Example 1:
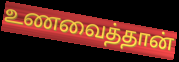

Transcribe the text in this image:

உணவைத்தான்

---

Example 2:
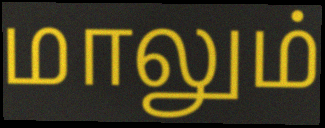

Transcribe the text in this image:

மாலும்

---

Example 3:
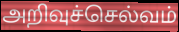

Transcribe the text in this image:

அறிவுச்செல்வம்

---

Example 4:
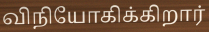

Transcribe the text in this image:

விநியோகிக்கிறார்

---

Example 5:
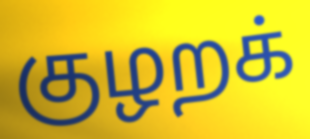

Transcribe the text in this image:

குழறக்